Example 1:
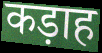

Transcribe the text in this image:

कड़ाह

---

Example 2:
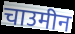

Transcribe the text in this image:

चाउमीन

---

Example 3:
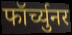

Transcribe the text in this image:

फॉर्च्युनर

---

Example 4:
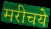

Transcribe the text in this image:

मरीचये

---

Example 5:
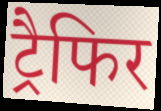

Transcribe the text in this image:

ट्रैफिर